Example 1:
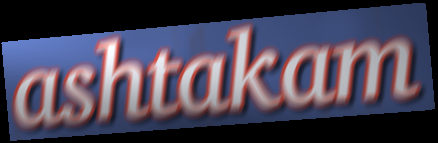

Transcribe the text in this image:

ashtakam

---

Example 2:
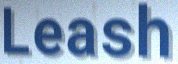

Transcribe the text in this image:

Leash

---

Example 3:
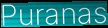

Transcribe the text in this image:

Puranas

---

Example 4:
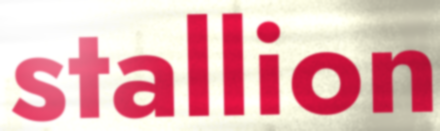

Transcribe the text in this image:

stallion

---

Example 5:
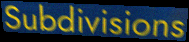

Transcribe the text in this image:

Subdivisions